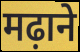
मढ़ाने